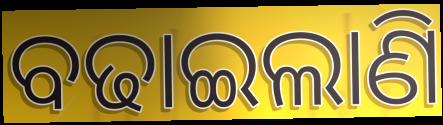
ବଢାଇଲାଣି